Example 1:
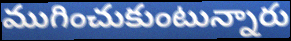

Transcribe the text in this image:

ముగించుకుంటున్నారు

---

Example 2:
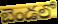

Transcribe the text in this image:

బెండలో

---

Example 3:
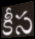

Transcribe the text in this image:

కీస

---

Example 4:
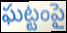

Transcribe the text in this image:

ఘట్టంపై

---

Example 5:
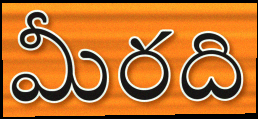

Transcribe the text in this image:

మీరది